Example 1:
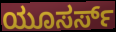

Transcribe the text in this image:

ಯೂಸರ್ಸ್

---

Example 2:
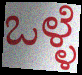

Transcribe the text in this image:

ಒಳ್ಳೆ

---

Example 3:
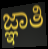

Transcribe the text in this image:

ಜ್ಞಾತಿ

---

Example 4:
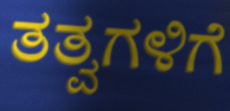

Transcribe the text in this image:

ತತ್ವಗಳಿಗೆ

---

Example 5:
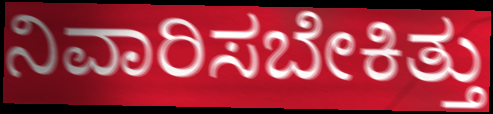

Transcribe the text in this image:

ನಿವಾರಿಸಬೇಕಿತ್ತು